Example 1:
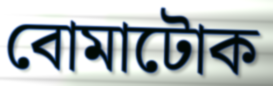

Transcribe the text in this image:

বোমাটোক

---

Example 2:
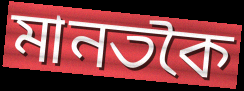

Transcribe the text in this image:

মানতকৈ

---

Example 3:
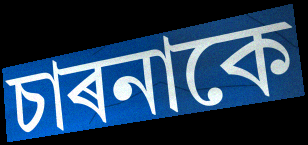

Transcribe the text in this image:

চাৰনাকে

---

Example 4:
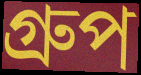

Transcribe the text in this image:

গ্ৰুপ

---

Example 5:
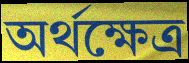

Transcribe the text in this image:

অৰ্থক্ষেত্ৰ